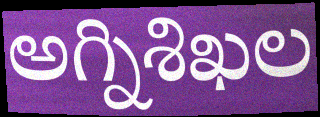
అగ్నిశిఖల